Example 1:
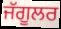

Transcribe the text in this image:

ਜੱਗੂਲਰ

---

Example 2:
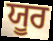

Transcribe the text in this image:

ਯੂਰ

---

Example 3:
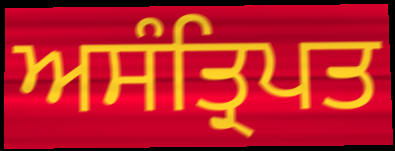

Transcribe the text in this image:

ਅਸੰਤ੍ਰਿਪਤ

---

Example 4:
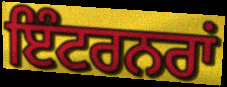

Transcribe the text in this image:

ਇੰਟਰਨਰਾਂ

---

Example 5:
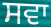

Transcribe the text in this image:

ਸਵਾ